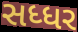
સધ્ધર